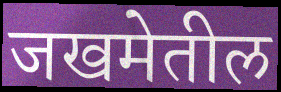
जखमेतील